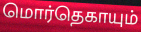
மொர்தெகாயும்